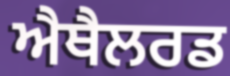
ਐਥੈਲਰਡ